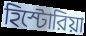
হিস্টোরিয়া